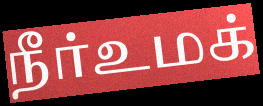
நீர்உமக்